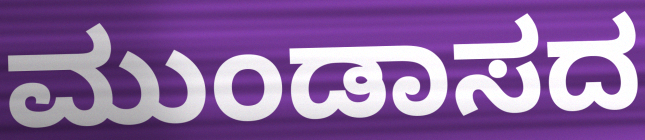
ಮುಂಡಾಸದ